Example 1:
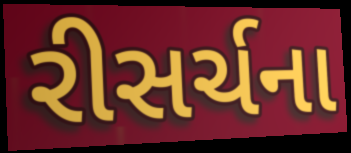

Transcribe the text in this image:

રીસર્ચના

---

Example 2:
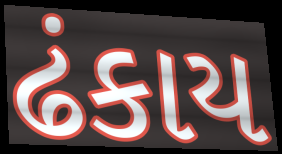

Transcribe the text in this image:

ઢંકાય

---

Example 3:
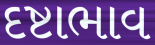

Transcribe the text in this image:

દષ્ટાભાવ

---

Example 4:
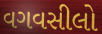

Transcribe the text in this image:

વગવસીલો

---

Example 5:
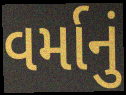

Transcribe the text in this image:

વર્માનું